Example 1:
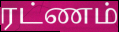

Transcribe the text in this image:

ரட்ணம்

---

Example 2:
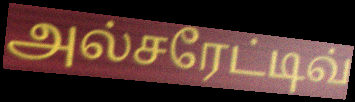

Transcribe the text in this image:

அல்சரேட்டிவ்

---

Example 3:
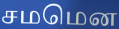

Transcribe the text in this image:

சமமென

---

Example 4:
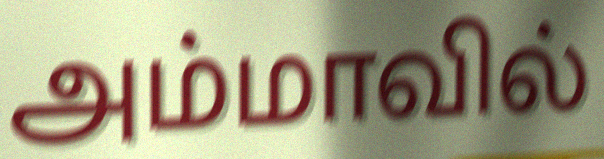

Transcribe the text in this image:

அம்மாவில்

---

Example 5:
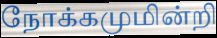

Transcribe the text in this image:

நோக்கமுமின்றி